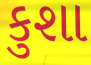
કુશા